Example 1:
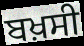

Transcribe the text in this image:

ਬਖ਼ਸੀ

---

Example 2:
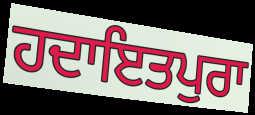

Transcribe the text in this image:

ਹਦਾਇਤਪੁਰਾ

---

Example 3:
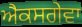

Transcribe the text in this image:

ਐਕਸਗੇਵਾ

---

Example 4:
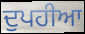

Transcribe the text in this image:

ਦੁਪਹੀਆ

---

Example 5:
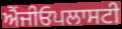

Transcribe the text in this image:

ਐਂਜੀਓਪਲਾਸਟੀ